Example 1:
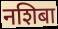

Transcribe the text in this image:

नशिबा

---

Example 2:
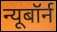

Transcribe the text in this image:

न्यूबॉर्न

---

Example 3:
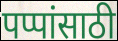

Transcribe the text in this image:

पप्पांसाठी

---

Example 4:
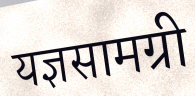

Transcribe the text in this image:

यज्ञसामग्री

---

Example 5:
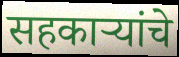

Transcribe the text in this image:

सहकार्‍यांचे